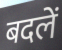
बदलें